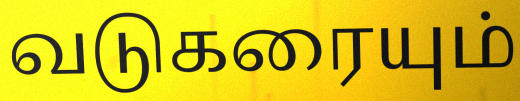
வடுகரையும்